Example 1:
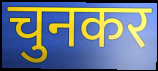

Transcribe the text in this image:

चुनकर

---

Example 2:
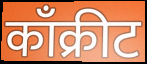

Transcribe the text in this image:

काँक्रीट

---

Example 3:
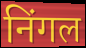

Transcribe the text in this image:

निंगल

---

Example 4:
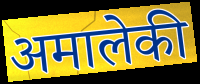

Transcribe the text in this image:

अमालेकी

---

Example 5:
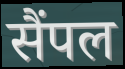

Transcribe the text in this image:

सैंपल